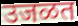
उजळत